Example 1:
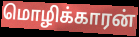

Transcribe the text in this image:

மொழிக்காரன்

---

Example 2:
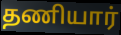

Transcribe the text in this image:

தணியார்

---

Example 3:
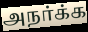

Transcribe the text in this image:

அநர்க்க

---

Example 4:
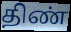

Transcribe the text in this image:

திண்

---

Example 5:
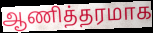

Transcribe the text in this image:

ஆணித்தரமாக